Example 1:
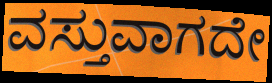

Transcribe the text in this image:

ವಸ್ತುವಾಗದೇ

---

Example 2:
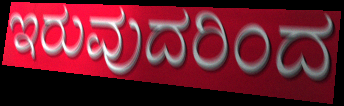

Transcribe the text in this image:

ಇರುವುದರಿಂದ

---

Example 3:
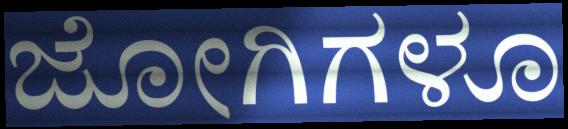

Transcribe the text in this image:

ಜೋಗಿಗಳೂ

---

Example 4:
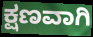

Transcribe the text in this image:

ಕ್ಷಣವಾಗಿ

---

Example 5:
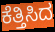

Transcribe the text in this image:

ಕೆತ್ತಿಸಿದ